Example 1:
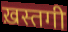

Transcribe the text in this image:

ख़स्तगी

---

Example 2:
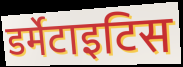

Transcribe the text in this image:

डर्मेटाइटिस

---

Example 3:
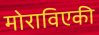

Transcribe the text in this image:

मोराविएकी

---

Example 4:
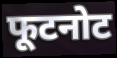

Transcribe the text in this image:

फूटनोट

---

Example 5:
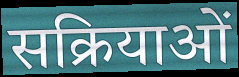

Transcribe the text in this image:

सक्रियाओं